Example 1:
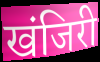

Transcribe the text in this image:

खंजिरी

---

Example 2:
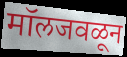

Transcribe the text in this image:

मॉलजवळून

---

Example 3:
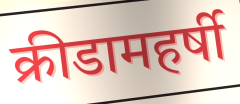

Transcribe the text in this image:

क्रीडामहर्षी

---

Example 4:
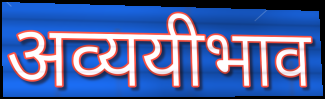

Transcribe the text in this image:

अव्ययीभाव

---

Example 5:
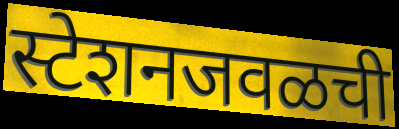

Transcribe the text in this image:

स्टेशनजवळची